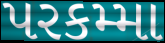
પરકમ્મા